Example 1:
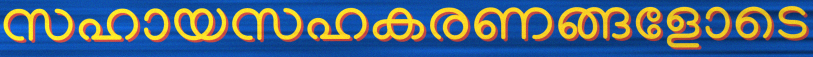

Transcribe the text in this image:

സഹായസഹകരണങ്ങളോടെ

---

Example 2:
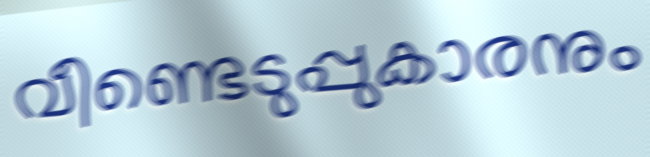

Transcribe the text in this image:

വീണ്ടെടുപ്പുകാരനും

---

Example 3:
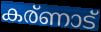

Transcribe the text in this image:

കര്ണാട്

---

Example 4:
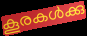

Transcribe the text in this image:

കൂരകൾക്കു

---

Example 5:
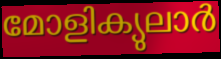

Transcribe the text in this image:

മോളിക്യുലാർ